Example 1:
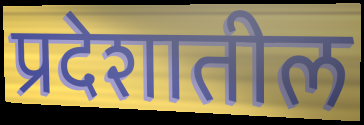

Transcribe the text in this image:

प्रदेशातील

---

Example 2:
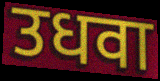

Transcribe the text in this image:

उधवा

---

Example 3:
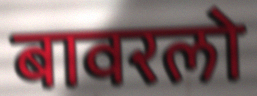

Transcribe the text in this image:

बावरलो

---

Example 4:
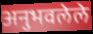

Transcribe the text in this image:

अनुभवलेले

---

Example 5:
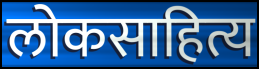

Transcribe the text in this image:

लोकसाहित्य